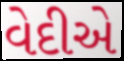
વેદીએ